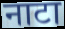
नाटा